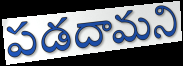
పడదామని